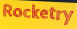
Rocketry